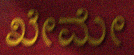
ಖೇಮೇ